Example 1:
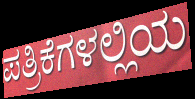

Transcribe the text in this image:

ಪತ್ರಿಕೆಗಳಲ್ಲಿಯ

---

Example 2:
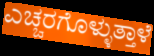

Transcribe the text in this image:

ಎಚ್ಚರಗೊಳ್ಳುತ್ತಾಳೆ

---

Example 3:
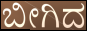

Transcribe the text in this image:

ಬೀಗಿದ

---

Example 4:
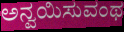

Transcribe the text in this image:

ಅನ್ವಯಿಸುವಂಥ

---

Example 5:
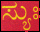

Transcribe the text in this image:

ಸ್ಯುಃ